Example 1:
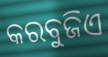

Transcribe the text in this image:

କରବୁଜିଏ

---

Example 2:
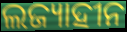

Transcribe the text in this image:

ଲଜ୍ଯାହୀନ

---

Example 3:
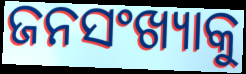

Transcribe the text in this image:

ଜନସଂଖ୍ୟାକୁ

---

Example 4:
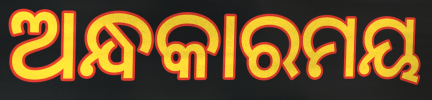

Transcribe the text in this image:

ଅନ୍ଧକାରମୟ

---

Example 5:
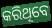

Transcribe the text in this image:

କରିଥିବେ